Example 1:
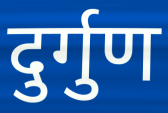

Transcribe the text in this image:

दुर्गुण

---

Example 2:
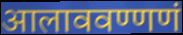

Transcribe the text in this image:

आलाववण्णणं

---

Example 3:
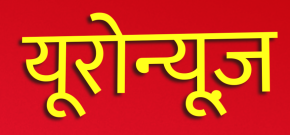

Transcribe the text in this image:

यूरोन्यूज़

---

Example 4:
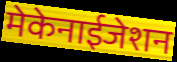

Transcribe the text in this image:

मेकेनाईजेशन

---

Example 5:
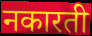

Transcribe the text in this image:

नकारती